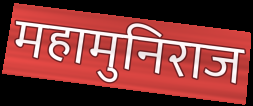
महामुनिराज